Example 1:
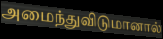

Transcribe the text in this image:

அமைந்துவிடுமானால்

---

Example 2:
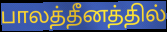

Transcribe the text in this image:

பாலத்தீனத்தில்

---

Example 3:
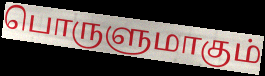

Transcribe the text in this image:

பொருளுமாகும்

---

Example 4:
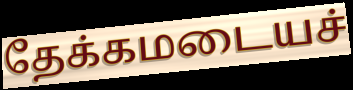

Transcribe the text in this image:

தேக்கமடையச்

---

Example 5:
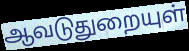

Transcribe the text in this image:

ஆவடுதுறையுள்